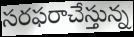
సరఫరాచేస్తున్న